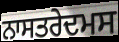
ਨਾਸਤਰੇਦਮਸ